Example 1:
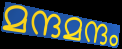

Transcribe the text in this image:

മന്ദമന്ദം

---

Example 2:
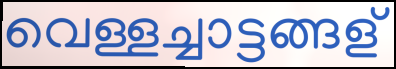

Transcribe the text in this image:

വെള്ളച്ചാട്ടങ്ങള്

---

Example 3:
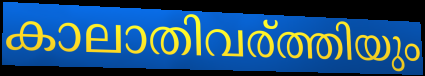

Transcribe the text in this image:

കാലാതിവര്ത്തിയും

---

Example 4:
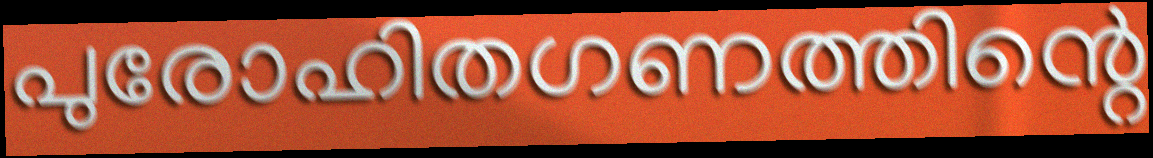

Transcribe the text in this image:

പുരോഹിതഗണത്തിന്റെ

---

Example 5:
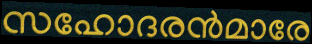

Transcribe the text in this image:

സഹോദരൻമാരേ